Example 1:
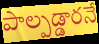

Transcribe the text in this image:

పాల్పడ్డారనే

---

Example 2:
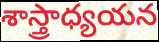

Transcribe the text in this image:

శాస్త్రాధ్యయన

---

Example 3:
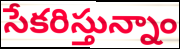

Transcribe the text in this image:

సేకరిస్తున్నాం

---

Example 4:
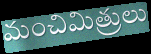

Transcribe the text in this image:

మంచిమిత్రులు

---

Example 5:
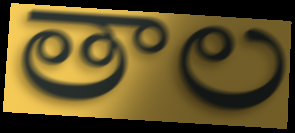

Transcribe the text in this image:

తాల